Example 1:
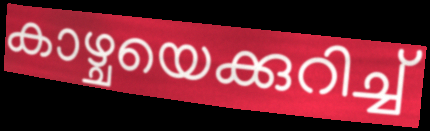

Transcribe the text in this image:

കാഴ്ചയെക്കുറിച്ച്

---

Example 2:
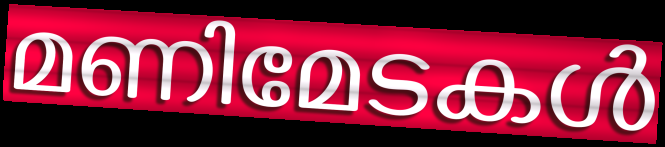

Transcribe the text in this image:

മണിമേടകൾ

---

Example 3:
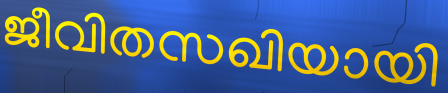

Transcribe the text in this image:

ജീവിതസഖിയായി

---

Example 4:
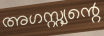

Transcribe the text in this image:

അഗസ്റ്റ്യന്റെ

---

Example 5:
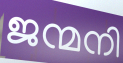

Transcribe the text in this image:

ജന്മനി